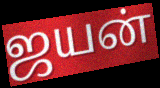
ஜயன்